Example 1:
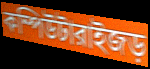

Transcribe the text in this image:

কম্পিউটারাইজড়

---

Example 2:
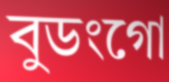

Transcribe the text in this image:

বুডংগো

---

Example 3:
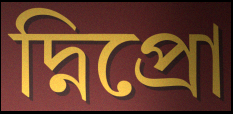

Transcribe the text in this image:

দ্নিপ্রো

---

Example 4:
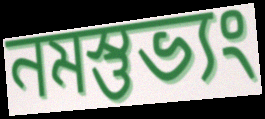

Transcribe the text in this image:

নমস্তুভ্যং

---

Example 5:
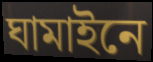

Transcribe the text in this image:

ঘামাইনে